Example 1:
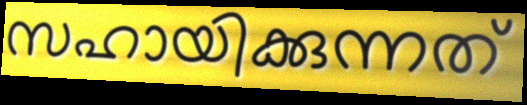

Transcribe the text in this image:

സഹായിക്കുന്നത്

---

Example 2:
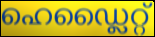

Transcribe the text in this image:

ഹെഡ്ലൈറ്റ്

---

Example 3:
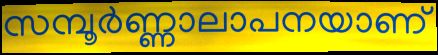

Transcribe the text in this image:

സമ്പൂർണ്ണാലാപനയാണ്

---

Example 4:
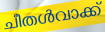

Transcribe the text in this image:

ചീതൾവാക്ക്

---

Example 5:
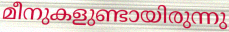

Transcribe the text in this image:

മീനുകളുണ്ടായിരുന്നു